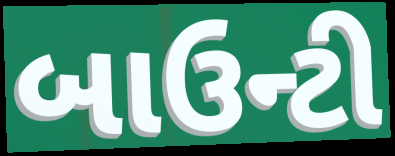
બાઉન્ટી